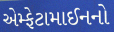
એમ્ફેટામાઈનનો